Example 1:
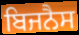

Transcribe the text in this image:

ਬਿਜਨੈਸ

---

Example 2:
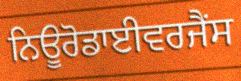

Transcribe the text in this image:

ਨਿਊਰੋਡਾਈਵਰਜੈਂਸ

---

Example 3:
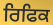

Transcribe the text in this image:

ਰਿਫਿਕ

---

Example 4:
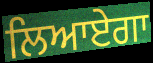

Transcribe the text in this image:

ਲਿਆਏਗਾ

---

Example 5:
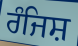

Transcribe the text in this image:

ਰੰਜਿਸ਼